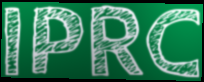
IPRC